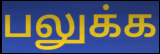
பலுக்க